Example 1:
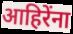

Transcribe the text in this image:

आहिरेंना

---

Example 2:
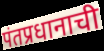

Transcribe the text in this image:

पंतप्रधानाची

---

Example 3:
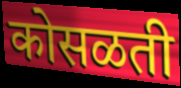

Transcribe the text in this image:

कोसळती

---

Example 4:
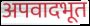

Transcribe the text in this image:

अपवादभूत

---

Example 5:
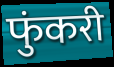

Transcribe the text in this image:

फुंकरी